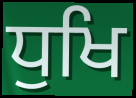
ਧੁਖਿ